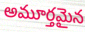
అమూర్తమైన